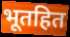
भूतहित